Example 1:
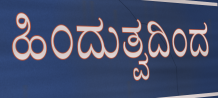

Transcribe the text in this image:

ಹಿಂದುತ್ವದಿಂದ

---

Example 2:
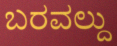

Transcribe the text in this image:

ಬರವಲ್ದು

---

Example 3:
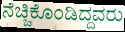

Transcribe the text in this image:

ನೆಚ್ಚಿಕೊಂಡಿದ್ದವರು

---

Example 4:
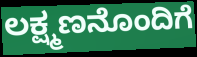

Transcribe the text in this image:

ಲಕ್ಷ್ಮಣನೊಂದಿಗೆ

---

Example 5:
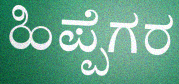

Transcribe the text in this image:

ಹಿಪ್ಪೆಗರ